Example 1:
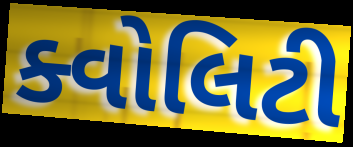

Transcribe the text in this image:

ક્વોલિટી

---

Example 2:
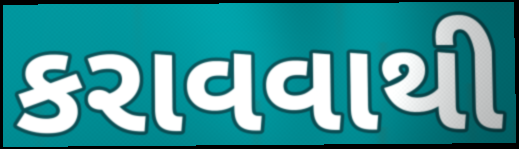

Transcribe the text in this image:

કરાવવાથી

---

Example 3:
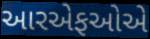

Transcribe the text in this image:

આરએફઓએ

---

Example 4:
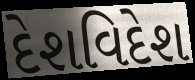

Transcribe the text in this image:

દેશવિદેશ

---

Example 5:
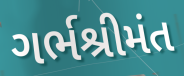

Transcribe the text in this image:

ગર્ભશ્રીમંત